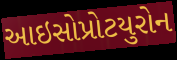
આઇસોપ્રોટયુરોન